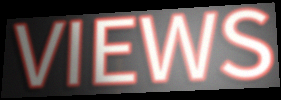
VIEWS